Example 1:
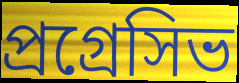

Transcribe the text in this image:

প্রগ্রেসিভ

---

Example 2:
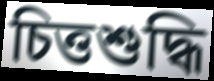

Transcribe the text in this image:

চিত্তশুদ্ধি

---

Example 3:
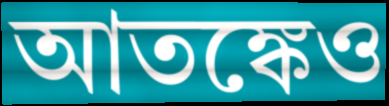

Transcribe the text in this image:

আতঙ্কেও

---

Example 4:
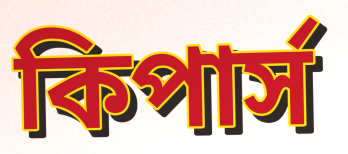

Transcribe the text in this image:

কিপার্স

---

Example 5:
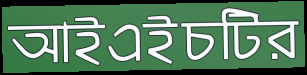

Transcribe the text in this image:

আইএইচটির